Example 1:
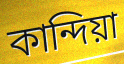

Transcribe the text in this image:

কান্দিয়া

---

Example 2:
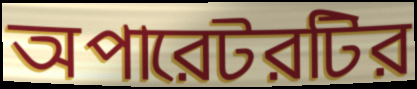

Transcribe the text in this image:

অপারেটরটির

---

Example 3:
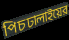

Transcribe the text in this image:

পিচঢালাইয়ের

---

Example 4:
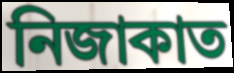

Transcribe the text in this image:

নিজাকাত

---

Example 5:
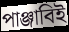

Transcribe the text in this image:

পাঞ্জাবিই